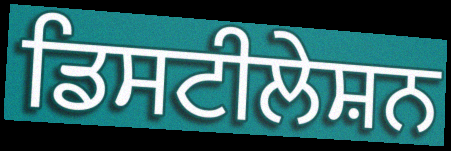
ਡਿਸਟੀਲੇਸ਼ਨ